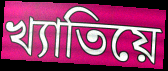
খ্যাতিয়ে